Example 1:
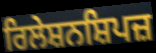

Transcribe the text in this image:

ਰਿਲੇਸ਼ਨਸ਼ਿਪਜ਼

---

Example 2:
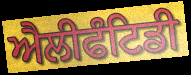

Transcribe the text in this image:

ਐਲੀਫੰਟਿਡੀ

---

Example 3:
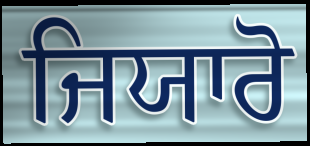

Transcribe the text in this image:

ਜਿਯਾਰੋ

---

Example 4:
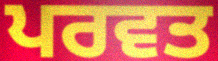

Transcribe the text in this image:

ਪਰਵਤ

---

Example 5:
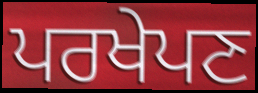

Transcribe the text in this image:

ਪਰਖੇਪਣ